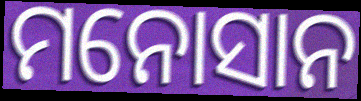
ମନୋସାନ